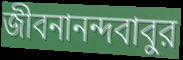
জীবনানন্দবাবুর